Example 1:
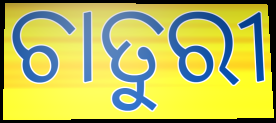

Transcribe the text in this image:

ଚାତୁରୀ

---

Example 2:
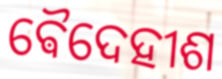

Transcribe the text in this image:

ଵୈଦେହୀଶ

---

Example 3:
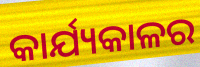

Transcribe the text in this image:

କାର୍ଯ୍ୟକାଳର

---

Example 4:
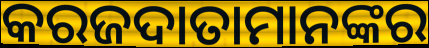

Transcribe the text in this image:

କରଜଦାତାମାନଙ୍କର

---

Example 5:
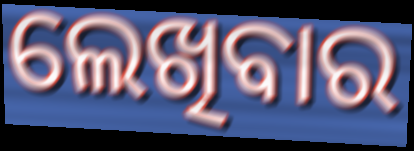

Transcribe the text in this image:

ଲେଖିବାର